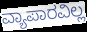
ವ್ಯಾಪಾರವಿಲ್ಲ